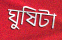
ঘুষিটা